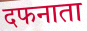
दफनाता